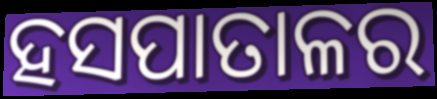
ହସପାତାଳର